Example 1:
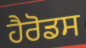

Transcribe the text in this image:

ਹੈਰੋਡਸ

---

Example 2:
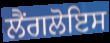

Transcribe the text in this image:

ਲੈਂਗਲੋਇਸ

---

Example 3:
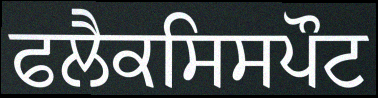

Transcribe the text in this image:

ਫਲੈਕਸਿਸਪੌਟ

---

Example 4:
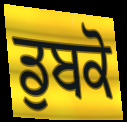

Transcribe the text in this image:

ਡੁਬਕੋ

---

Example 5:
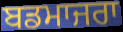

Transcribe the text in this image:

ਬਡਮਾਜਰਾ